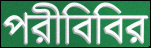
পরীবিবির